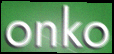
onko